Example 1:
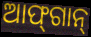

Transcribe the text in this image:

ଆଫ୍‌ଗାନ୍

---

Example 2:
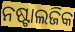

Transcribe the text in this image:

ନଷ୍ଟାଲଜିକ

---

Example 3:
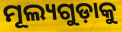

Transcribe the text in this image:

ମୂଲ୍ୟଗୁଡ଼ାକୁ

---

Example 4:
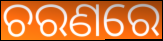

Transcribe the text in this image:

ଚରଣରେ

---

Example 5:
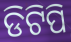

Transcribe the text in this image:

ଡିଟିପି